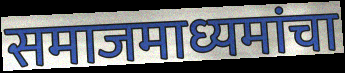
समाजमाध्यमांचा